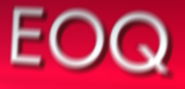
EOQ